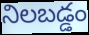
నిలబడ్డం